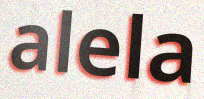
alela